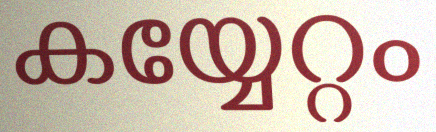
കയ്യേറ്റം